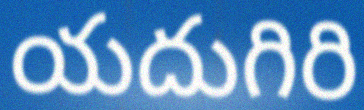
యదుగిరి